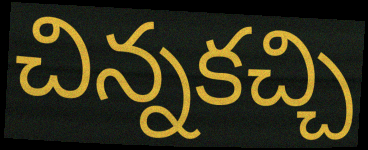
చిన్నకచ్చి